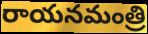
రాయనమంత్రి